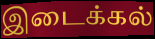
இடைக்கல்